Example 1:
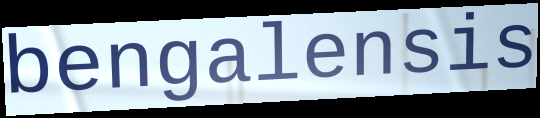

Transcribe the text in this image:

bengalensis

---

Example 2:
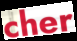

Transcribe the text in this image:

cher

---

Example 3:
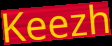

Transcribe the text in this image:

Keezh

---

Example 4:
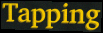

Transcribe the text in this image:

Tapping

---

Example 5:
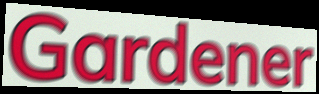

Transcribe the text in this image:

Gardener